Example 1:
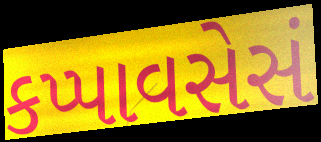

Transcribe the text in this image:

કપ્પાવસેસં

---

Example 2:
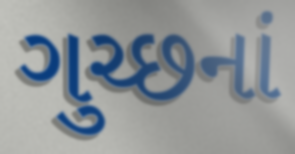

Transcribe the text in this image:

ગુચ્છનાં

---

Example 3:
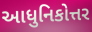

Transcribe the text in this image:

આધુનિકોત્તર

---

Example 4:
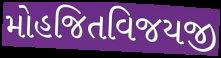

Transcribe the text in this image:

મોહજિતવિજયજી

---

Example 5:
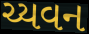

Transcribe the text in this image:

ચ્યવન